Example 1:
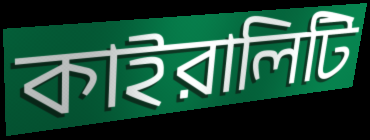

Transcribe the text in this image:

কাইরালিটি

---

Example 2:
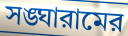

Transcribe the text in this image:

সঙ্ঘারামের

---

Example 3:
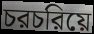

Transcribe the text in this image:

চরচরিয়ে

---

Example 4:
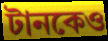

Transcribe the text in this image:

টানকেও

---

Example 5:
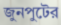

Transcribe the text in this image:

জুনপুটের